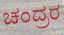
ಚಂದ್ರರ